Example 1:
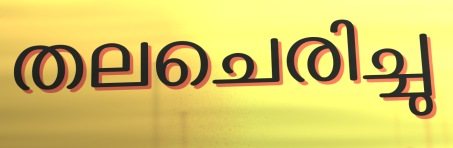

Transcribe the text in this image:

തലചെരിച്ചു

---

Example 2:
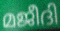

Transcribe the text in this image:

മജീദി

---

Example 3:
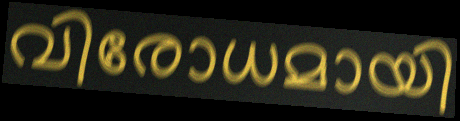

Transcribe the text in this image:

വിരോധമായി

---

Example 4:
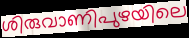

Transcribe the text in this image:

ശിരുവാണിപുഴയിലെ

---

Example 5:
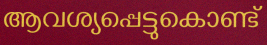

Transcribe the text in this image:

ആവശ്യപ്പെട്ടുകൊണ്ട്